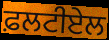
ਫ਼ਲਟੀਏਲ